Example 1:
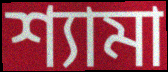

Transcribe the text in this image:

শ্যামা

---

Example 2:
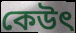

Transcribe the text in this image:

কেউৎ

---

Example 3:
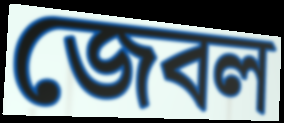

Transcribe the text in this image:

জেবল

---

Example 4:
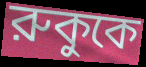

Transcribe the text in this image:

রুকুকে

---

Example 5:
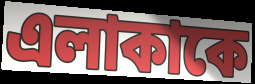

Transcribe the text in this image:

এলাকাকে